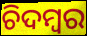
ଚିଦମ୍ବର